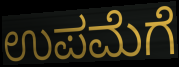
ಉಪಮೆಗೆ